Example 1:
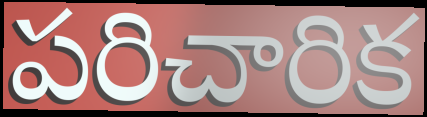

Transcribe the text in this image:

పరిచారిక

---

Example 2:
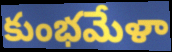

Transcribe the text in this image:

కుంభమేళా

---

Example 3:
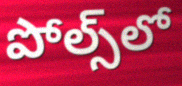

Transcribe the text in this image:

పోల్స్‌లో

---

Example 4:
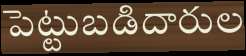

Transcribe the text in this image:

పెట్టుబడిదారుల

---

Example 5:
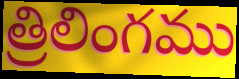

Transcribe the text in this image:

త్రిలింగము